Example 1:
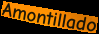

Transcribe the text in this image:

Amontillado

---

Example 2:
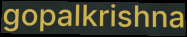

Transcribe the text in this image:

gopalkrishna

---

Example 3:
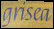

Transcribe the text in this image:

grisea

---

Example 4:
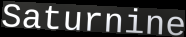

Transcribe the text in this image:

Saturnine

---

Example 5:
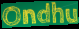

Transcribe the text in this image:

Ondhu